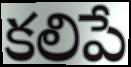
కలిపే